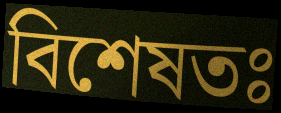
বিশেষতঃ